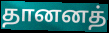
தானனத்